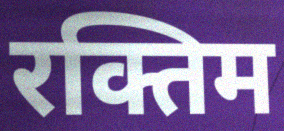
रक्तिम